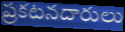
ప్రకటనదారులు